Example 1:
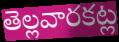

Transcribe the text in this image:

తెల్లవారకట్ల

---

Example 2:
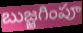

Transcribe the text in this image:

బుజ్జగింపూ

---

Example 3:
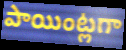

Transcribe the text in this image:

పాయింట్లగా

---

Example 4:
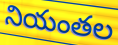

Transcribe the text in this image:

నియంతల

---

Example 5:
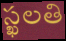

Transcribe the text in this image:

స్ఖలతి